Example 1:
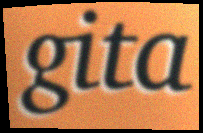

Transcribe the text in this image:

gita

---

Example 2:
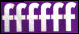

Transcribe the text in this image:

ffffff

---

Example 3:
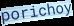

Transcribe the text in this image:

porichoy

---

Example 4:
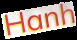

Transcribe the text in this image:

Hanh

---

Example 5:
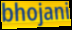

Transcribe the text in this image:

bhojani